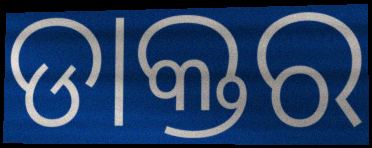
ଡାକ୍ତର